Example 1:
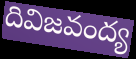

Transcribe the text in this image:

దివిజవంద్య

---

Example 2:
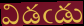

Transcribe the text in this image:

విడఁడు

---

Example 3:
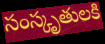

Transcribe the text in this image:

సంస్కృతులకి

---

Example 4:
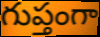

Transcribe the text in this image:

గుప్తంగా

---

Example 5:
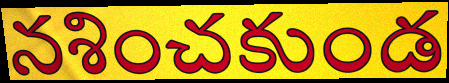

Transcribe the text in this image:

నశించకుండ